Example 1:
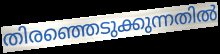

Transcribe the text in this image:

തിരഞ്ഞെടുക്കുന്നതിൽ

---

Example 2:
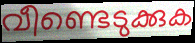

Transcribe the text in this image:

വീണ്ടെടുക്കുക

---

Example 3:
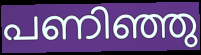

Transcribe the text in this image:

പണിഞ്ഞു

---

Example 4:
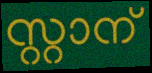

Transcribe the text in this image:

സ്റ്റാന്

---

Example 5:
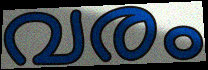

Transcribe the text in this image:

വരം